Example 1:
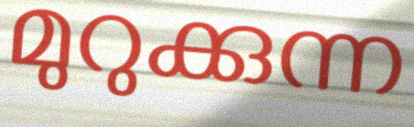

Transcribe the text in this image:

മുറുക്കുന്ന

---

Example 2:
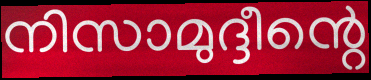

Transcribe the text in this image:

നിസാമുദ്ദീന്റെ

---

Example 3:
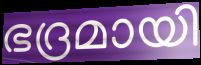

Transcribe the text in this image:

ഭദ്രമായി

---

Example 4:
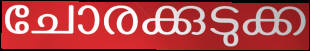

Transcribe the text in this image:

ചോരക്കുടുക്ക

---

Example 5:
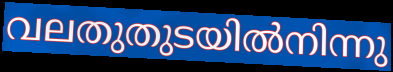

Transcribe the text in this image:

വലതുതുടയിൽനിന്നു